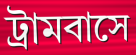
ট্রামবাসে